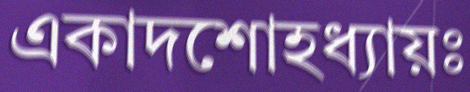
একাদশোহধ্যায়ঃ